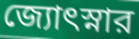
জ্যোৎস্নার